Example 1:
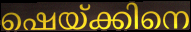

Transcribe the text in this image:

ഷെയ്ക്കിനെ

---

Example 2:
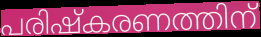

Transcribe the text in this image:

പരിഷ്കരണത്തിന്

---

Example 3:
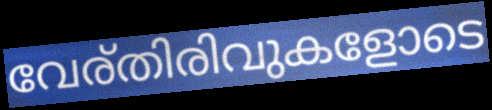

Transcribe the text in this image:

വേര്തിരിവുകളോടെ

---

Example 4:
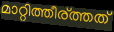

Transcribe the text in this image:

മാറ്റിത്തീര്ത്തത്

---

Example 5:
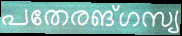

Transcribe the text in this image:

പതേരങ്ഗസ്യ